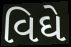
વિઘે